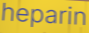
heparin